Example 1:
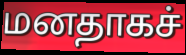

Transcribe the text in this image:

மனதாகச்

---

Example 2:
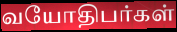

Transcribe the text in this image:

வயோதிபர்கள்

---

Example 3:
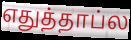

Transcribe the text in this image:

எதுத்தாப்ல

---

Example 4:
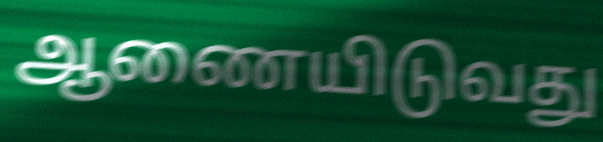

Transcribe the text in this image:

ஆணையிடுவது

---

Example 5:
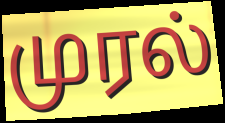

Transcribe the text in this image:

முரல்